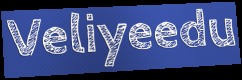
Veliyeedu